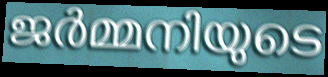
ജർമ്മനിയുടെ